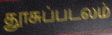
தூசுப்படலம்